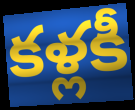
కళ్లకీ